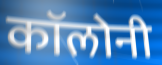
कॉलोनी